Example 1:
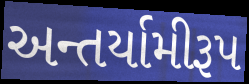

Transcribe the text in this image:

અન્તર્યામીરૂપ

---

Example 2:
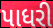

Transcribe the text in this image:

પાધરી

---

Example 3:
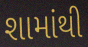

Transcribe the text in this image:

શામાંથી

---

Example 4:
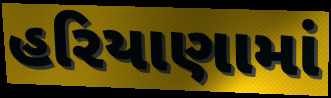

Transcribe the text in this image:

હરિયાણામાં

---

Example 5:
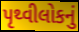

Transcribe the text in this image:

પૃથ્વીલોકનું